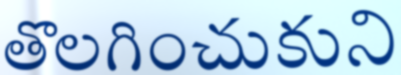
తొలగించుకుని